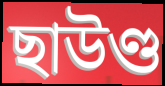
ছাউণ্ড